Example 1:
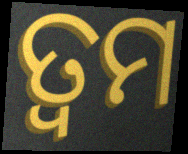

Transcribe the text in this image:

ତ୍ୱମ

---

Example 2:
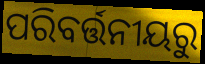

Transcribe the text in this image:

ପରିବର୍ତ୍ତନୀୟରୁ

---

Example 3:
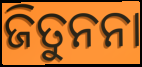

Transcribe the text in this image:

ଜିତୁନନା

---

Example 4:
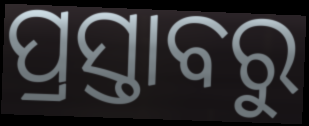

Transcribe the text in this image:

ପ୍ରସ୍ତାବରୁ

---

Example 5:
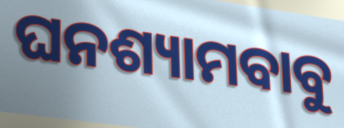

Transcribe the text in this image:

ଘନଶ୍ୟାମବାବୁ